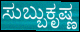
ಸುಬ್ಬುಕೃಷ್ಣ